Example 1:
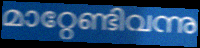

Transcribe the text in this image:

മാറ്റേണ്ടിവന്നു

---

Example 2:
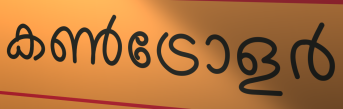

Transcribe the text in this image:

കൺട്രോളർ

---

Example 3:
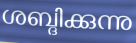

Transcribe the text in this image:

ശബ്ദിക്കുന്നു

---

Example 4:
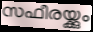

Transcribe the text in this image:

സഫീരയ്ക്കും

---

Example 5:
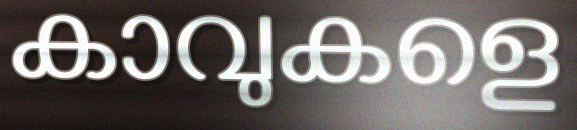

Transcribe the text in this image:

കാവുകളെ